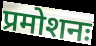
प्रमोशनः